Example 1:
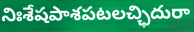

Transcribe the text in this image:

నిఃశేషపాశపటలచ్ఛిదురా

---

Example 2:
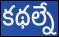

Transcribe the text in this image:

కథల్నే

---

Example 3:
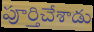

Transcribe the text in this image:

పూర్తిచేశాడు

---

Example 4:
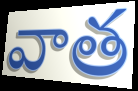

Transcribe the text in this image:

వాత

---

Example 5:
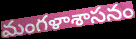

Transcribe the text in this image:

మంగళాశాసనం